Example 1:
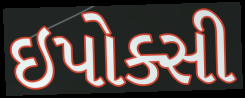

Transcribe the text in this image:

ઇપોક્સી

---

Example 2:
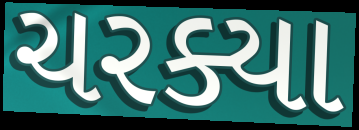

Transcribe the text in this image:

ચરક્યા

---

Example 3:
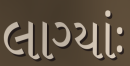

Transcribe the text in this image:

લાગ્યાંઃ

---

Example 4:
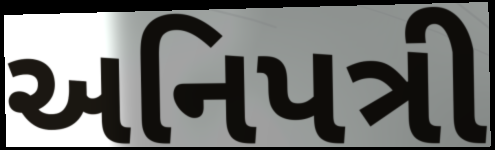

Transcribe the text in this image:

અનિપત્રી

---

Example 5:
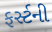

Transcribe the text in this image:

ફર્સ્ટની